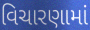
વિચારણામાં